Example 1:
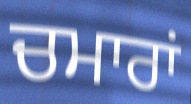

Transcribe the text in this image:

ਚਮਾਰਾਂ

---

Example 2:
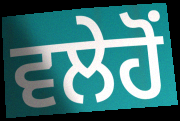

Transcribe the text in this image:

ਵਲੇਹੋਂ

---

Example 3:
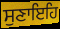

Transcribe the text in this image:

ਸੁਣਾਇਹਿ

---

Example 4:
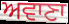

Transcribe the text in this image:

ਅਵਾਣਾ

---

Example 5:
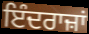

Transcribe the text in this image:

ਇੰਦਰਾਜ਼ਾਂ